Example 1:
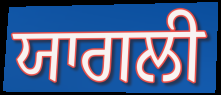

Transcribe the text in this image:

ਯਾਗਲੀ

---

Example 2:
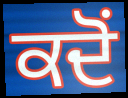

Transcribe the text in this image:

ਕਦੋਂ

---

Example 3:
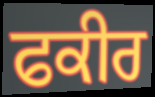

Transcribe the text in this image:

ਫਕੀਰ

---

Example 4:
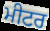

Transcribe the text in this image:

ਮੀਟਰ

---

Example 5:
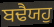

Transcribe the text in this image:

ਬਢੈਯਹੁ